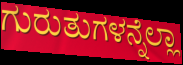
ಗುರುತುಗಳನ್ನೆಲ್ಲಾ